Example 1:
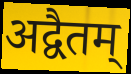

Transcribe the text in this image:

अद्वैतम्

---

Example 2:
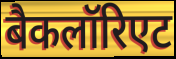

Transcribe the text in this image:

बैकलॉरिएट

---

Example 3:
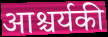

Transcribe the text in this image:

आश्चर्यकी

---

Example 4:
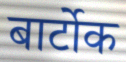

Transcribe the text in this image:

बार्टोक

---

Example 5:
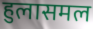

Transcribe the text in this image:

हुलासमल